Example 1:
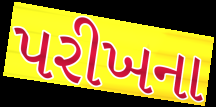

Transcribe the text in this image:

પરીખના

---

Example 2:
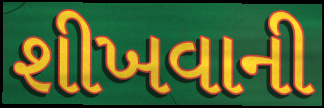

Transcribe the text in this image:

શીખવાની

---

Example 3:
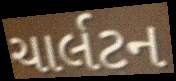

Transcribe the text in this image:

ચાર્લટન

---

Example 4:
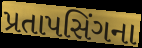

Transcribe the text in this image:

પ્રતાપસિંગના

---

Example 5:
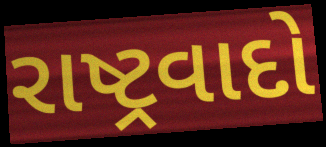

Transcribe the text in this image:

રાષ્ટ્રવાદો